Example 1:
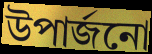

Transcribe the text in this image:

উপাৰ্জনো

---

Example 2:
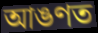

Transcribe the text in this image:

আঙণত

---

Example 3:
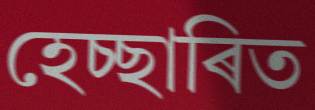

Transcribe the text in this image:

হেচ্ছাৰিত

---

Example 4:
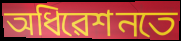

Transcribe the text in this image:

অধিৱেশনতে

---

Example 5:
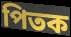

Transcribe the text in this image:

পিতক